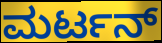
ಮರ್ಟನ್